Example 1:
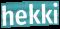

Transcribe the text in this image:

hekki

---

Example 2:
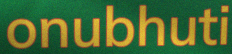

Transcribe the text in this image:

onubhuti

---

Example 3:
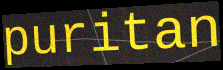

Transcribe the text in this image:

puritan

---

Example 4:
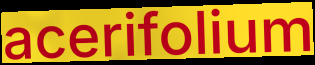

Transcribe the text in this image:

acerifolium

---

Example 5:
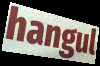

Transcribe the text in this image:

hangul